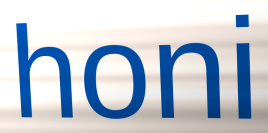
honi